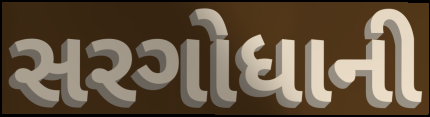
સરગોધાની